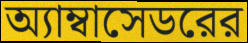
অ্যাম্বাসেডরের